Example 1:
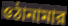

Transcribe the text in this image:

ওঠানামার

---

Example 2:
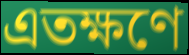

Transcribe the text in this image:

এতক্ষণে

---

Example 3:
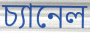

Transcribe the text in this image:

চ্যানেল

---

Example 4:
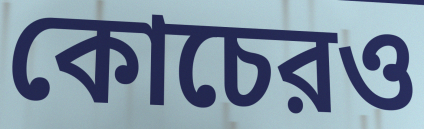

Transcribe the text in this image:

কোচেরও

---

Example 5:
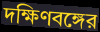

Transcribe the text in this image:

দক্ষিণবঙ্গের